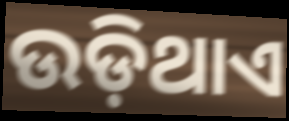
ଉଡ଼ିଥାଏ